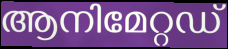
ആനിമേറ്റഡ്